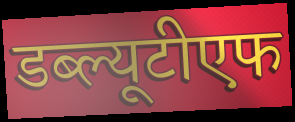
डब्ल्यूटीएफ